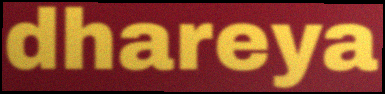
dhareya